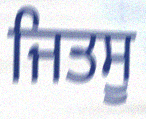
ਜਿਤਸੂ